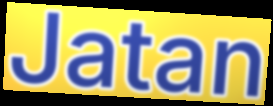
Jatan